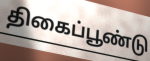
திகைப்பூண்டு